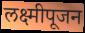
लक्ष्मीपूजन